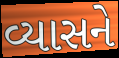
વ્યાસને